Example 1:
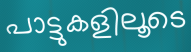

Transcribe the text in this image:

പാട്ടുകളിലൂടെ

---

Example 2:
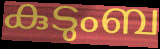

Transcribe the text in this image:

കുടുംബ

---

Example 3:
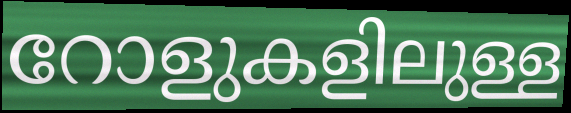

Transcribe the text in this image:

റോളുകളിലുള്ള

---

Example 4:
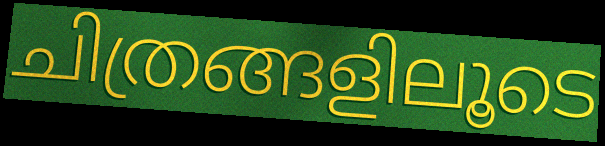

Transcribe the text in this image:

ചിത്രങ്ങളിലൂടെ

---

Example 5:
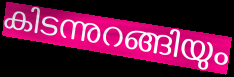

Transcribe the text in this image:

കിടന്നുറങ്ങിയും